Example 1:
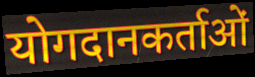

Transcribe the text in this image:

योगदानकर्ताओं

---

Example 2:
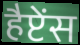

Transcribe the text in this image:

हैप्टेंस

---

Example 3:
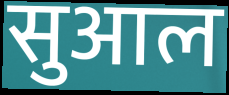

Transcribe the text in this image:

सुआल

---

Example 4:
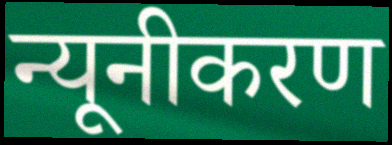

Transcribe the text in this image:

न्यूनीकरण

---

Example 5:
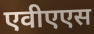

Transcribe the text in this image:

एवीएएस